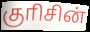
குரிசின்